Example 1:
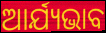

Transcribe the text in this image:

ଆର୍ଯ୍ୟଭାବ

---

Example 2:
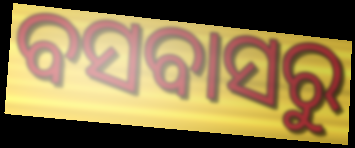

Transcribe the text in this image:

ବସବାସରୁ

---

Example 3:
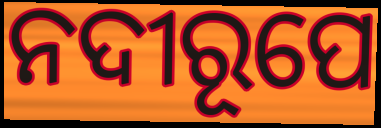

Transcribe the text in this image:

ନଦୀରୂପେ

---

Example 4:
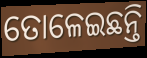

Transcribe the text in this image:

ତୋଳେଇଛନ୍ତି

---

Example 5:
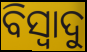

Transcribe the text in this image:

ବିସ୍ୱାଦୁ